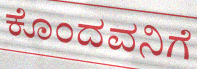
ಕೊಂದವನಿಗೆ